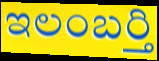
ఇలంబర్తి